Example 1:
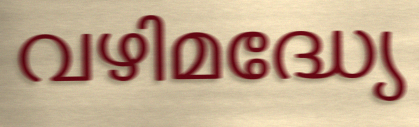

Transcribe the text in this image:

വഴിമദ്ധ്യേ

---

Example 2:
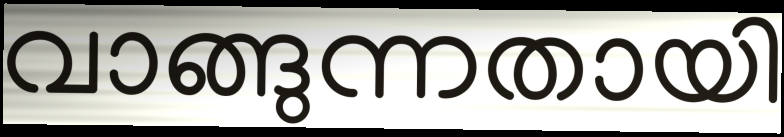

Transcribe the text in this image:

വാങ്ങുന്നതായി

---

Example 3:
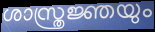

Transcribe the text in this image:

ശാസ്ത്രജ്ഞയും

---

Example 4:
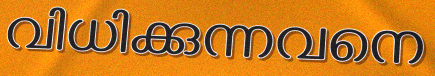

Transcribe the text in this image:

വിധിക്കുന്നവനെ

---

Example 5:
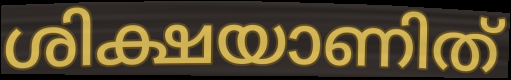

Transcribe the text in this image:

ശിക്ഷയാണിത്